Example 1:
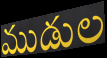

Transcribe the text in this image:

ముడుల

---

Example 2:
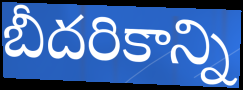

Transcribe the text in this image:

బీదరికాన్ని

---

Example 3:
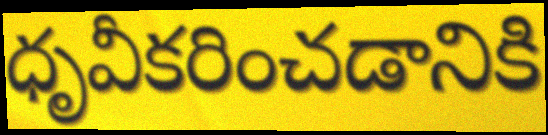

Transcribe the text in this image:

ధృవీకరించడానికి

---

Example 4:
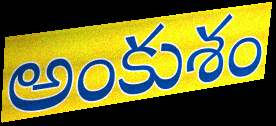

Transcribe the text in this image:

అంకుశం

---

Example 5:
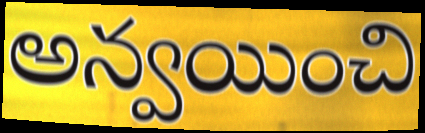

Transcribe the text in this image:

అన్వయించి